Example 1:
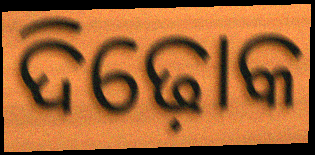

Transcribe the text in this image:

ଦିଢ଼ୋକ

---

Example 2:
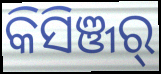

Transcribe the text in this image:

କିସିଞ୍ଜର୍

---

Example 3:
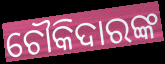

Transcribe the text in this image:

ଚୌକିଦାରଙ୍କ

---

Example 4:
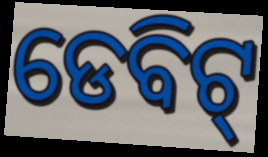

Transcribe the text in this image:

ଡେବିଟ୍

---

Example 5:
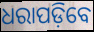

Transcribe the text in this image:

ଧରାପଡ଼ିବେ